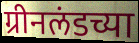
ग्रीनलंडच्या